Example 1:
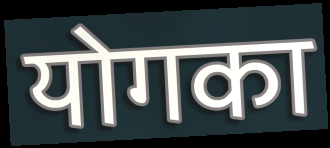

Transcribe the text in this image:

योगका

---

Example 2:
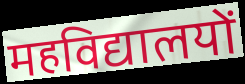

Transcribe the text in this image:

महविद्यालयों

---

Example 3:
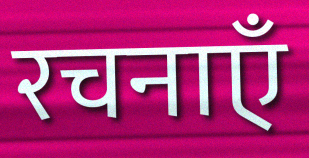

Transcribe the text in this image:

रचनाएँ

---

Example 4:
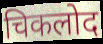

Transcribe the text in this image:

चिकलोद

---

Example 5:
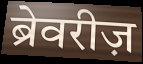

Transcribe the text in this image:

ब्रेवरीज़